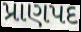
પ્રાણપદ